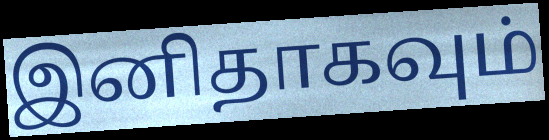
இனிதாகவும்